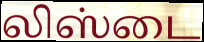
லிஸ்டை